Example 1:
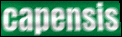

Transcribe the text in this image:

capensis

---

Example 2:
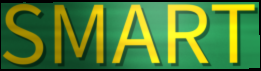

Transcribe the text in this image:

SMART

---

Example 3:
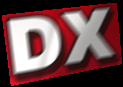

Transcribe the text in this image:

DX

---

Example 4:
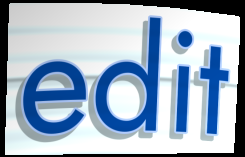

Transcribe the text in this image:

edit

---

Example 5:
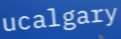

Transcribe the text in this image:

ucalgary